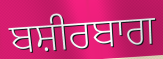
ਬਸ਼ੀਰਬਾਗ